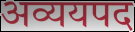
अव्ययपद